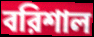
বরিশাল